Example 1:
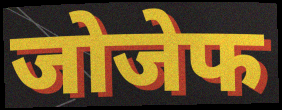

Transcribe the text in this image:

जोजेफ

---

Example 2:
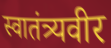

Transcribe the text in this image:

स्वातंत्र्यवीर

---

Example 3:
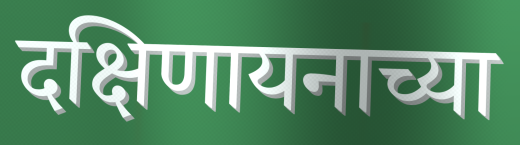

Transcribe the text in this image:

दक्षिणायनाच्या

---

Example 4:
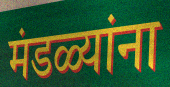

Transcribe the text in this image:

मंडळ्यांना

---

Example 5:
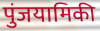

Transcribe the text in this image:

पुंजयामिकी